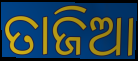
ତାଜିଆ